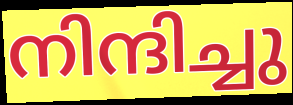
നിന്ദിച്ചു